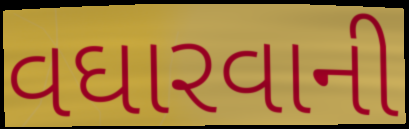
વઘારવાની